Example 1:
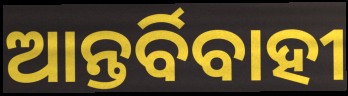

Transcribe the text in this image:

ଆନ୍ତର୍ବିବାହୀ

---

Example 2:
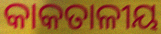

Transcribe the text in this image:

କାକତାଳୀୟ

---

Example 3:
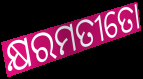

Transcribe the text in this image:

କ୍ଷରମତୀତୋ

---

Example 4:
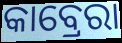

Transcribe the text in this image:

କାବ୍ରେରା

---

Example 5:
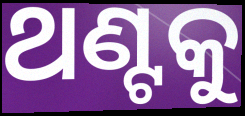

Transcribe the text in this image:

ଥଣ୍ଟକୁ